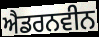
ਐਡਰਨਵੀਨ